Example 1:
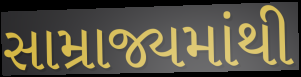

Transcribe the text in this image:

સામ્રાજ્યમાંથી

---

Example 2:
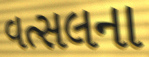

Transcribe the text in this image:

વત્સલના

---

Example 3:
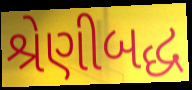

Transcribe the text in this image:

શ્રેણીબદ્ધ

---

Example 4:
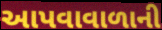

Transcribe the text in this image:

આપવાવાળાની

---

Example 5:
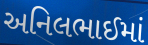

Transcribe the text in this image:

અનિલભાઈમાં